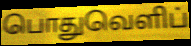
பொதுவெளிப்